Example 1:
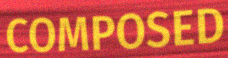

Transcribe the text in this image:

COMPOSED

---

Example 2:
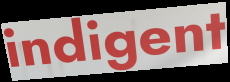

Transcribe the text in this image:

indigent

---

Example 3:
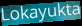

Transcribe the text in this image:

Lokayukta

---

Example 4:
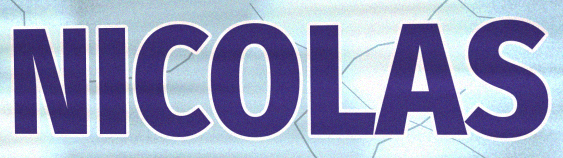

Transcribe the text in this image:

NICOLAS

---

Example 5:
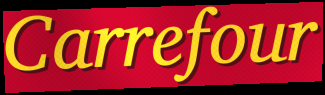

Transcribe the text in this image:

Carrefour